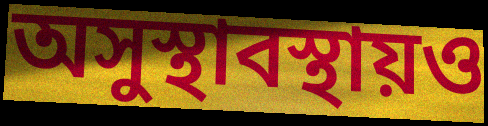
অসুস্থাবস্থায়ও